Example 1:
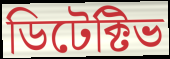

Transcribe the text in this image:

ডিটেক্টিভ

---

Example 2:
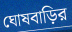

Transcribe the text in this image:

ঘোষবাড়ির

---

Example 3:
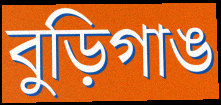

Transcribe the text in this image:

বুড়িগাঙ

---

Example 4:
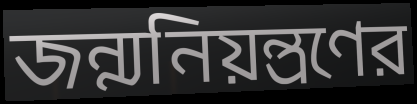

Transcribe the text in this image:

জন্মনিয়ন্ত্রণের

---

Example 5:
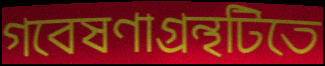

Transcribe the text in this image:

গবেষণাগ্রন্থটিতে